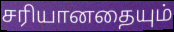
சரியானதையும்